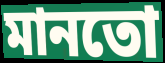
মানতো